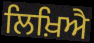
ਲਿਖ਼ਿਐ